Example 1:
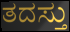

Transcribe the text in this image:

ತದಸ್ತು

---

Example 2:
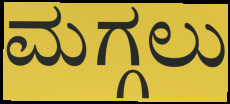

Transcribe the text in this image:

ಮಗ್ಗಲು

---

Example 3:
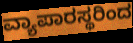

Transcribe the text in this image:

ವ್ಯಾಪಾರಸ್ಥರಿಂದ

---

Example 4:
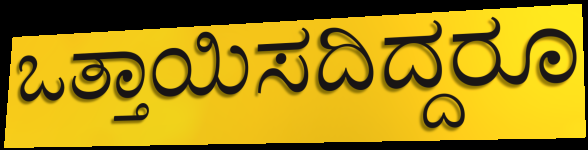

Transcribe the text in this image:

ಒತ್ತಾಯಿಸದಿದ್ದರೂ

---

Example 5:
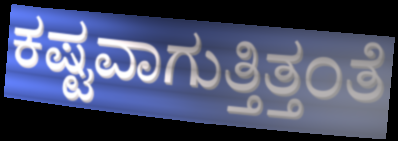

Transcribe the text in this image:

ಕಷ್ಟವಾಗುತ್ತಿತ್ತಂತೆ